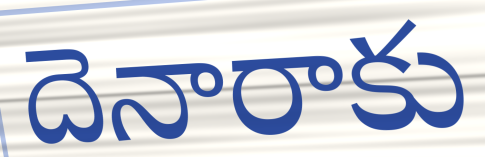
దెనారాకు